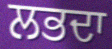
ਲਭਦਾ